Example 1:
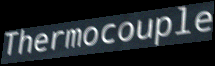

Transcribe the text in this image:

Thermocouple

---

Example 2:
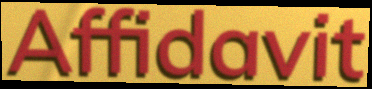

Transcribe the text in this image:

Affidavit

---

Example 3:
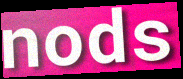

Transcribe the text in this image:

nods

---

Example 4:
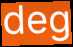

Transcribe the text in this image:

deg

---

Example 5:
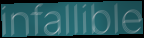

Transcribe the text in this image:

infallible